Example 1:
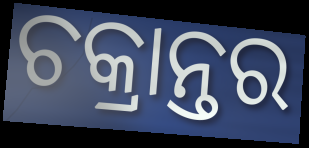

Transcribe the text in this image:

ଚକ୍ରାନ୍ତର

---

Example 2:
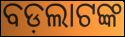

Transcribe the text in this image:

ବଡ଼ଲାଟଙ୍କ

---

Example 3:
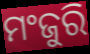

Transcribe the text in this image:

ମଂଜୁରି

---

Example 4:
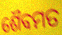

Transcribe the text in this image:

ଶୈବମତ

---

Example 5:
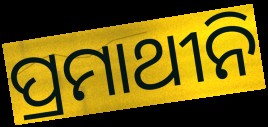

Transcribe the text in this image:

ପ୍ରମାଥୀନି